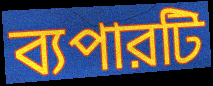
ব্যপারটি